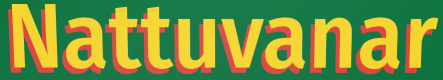
Nattuvanar